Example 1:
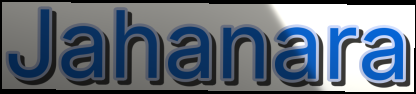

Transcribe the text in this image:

Jahanara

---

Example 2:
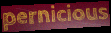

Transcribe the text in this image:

pernicious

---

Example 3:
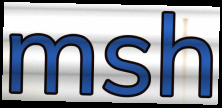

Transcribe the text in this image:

msh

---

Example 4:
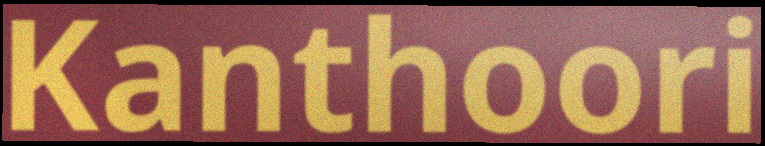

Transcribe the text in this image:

Kanthoori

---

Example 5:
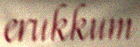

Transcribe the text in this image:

erukkum